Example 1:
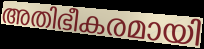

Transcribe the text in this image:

അതിഭീകരമായി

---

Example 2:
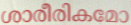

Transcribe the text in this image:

ശാരീരികമോ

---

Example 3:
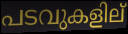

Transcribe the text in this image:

പടവുകളില്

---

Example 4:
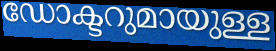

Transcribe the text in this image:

ഡോക്ടറുമായുള്ള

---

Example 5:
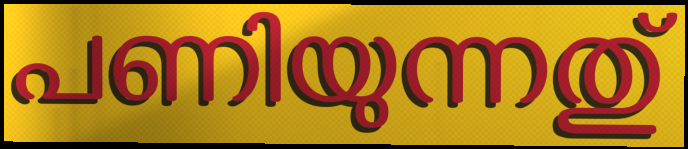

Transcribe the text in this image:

പണിയുന്നതു്